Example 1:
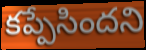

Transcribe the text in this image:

కప్పేసిందని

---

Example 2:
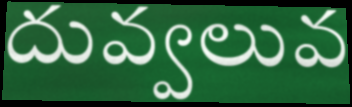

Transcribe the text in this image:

దువ్వలువ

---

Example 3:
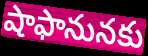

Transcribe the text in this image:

షాఫానునకు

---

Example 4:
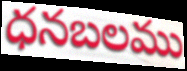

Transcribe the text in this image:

ధనబలము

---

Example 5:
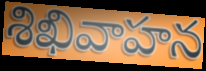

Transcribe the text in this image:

శిఖివాహన